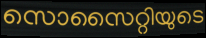
സൊസൈറ്റിയുടെ